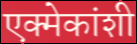
एक्मेकांशी